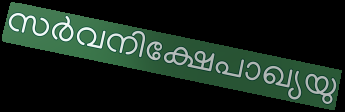
സർവനിക്ഷേപാഖ്യയു